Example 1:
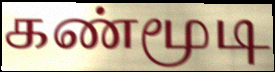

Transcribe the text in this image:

கண்மூடி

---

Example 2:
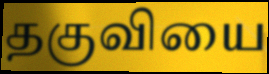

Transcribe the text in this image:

தகுவியை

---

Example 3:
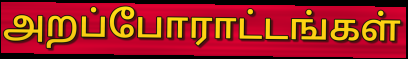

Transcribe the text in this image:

அறப்போராட்டங்கள்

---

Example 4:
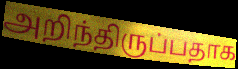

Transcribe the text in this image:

அறிந்திருப்பதாக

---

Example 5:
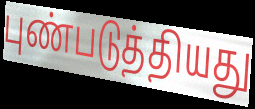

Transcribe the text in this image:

புண்படுத்தியது